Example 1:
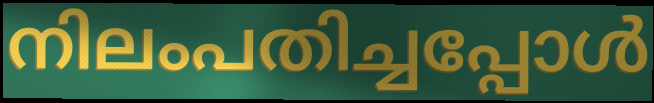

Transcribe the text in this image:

നിലംപതിച്ചപ്പോൾ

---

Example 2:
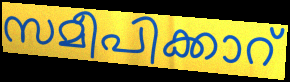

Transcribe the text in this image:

സമീപിക്കാറ്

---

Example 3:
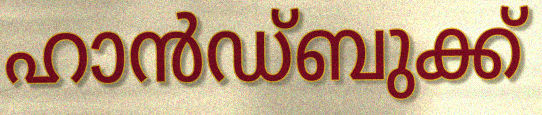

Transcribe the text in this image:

ഹാൻഡ്ബുക്ക്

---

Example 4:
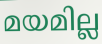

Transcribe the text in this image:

മയമില്ല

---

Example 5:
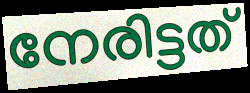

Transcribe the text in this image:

നേരിട്ടത്